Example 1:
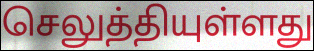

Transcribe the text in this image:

செலுத்தியுள்ளது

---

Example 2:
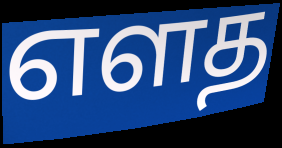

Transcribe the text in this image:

எளத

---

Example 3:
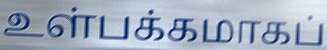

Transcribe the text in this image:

உள்பக்கமாகப்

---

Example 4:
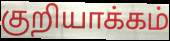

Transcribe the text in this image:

குறியாக்கம்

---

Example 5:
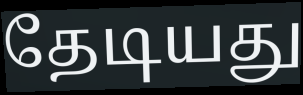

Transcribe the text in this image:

தேடியது